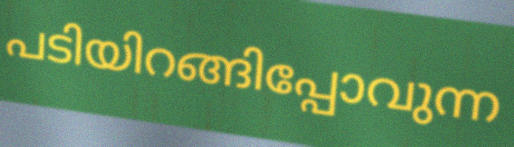
പടിയിറങ്ങിപ്പോവുന്ന